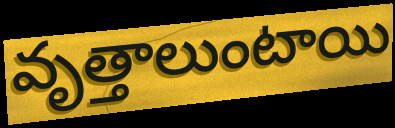
వృత్తాలుంటాయి